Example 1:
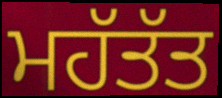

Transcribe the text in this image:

ਮਹੱਤੱਤ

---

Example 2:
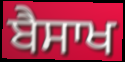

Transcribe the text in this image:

ਬੈਸਾਖ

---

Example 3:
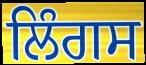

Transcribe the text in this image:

ਲਿੰਗਸ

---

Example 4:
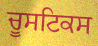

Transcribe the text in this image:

ਚੂਸਟਿਕਸ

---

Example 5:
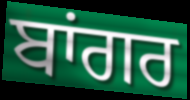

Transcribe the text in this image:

ਬਾਂਗਰ